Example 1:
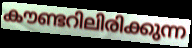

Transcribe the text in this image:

കൗണ്ടറിലിരിക്കുന്ന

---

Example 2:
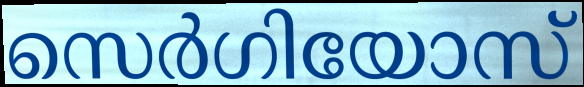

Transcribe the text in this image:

സെർഗിയോസ്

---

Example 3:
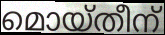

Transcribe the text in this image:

മൊയ്തീന്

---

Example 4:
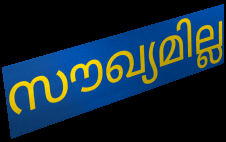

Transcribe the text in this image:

സൗഖ്യമില്ല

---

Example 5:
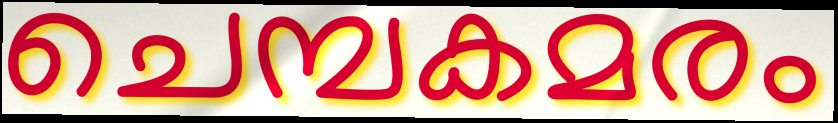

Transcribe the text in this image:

ചെമ്പകമരം